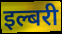
इल्बरी